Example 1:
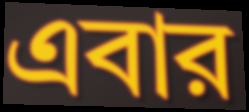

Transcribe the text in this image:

এবার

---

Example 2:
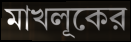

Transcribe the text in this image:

মাখলূকের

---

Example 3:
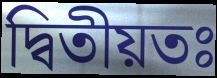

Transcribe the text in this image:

দ্বিতীয়তঃ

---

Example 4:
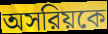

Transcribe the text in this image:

অসরিয়কে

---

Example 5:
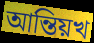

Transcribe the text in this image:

আন্তিয়খ